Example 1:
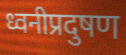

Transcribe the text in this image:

ध्वनीप्रदुषण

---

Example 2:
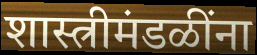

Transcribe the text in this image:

शास्त्रीमंडळींना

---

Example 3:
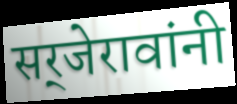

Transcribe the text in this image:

सर्जेरावांनी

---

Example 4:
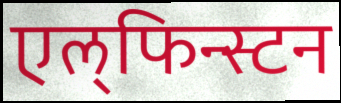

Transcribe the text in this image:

एल्फिन्स्टन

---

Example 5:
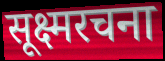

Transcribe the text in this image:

सूक्ष्मरचना